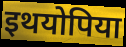
इथयोपिया